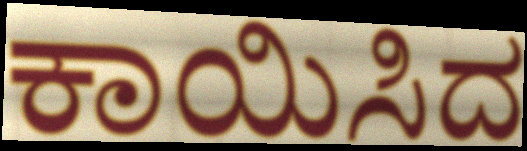
ಕಾಯಿಸಿದ